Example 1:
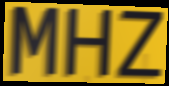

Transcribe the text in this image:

MHZ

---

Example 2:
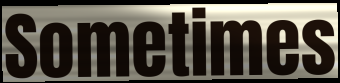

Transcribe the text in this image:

Sometimes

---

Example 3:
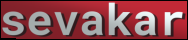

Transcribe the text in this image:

sevakar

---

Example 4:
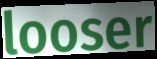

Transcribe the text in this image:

looser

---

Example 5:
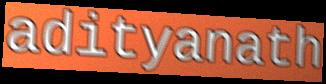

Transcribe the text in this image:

adityanath